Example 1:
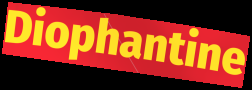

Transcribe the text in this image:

Diophantine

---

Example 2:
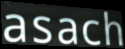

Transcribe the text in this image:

asach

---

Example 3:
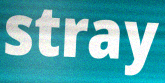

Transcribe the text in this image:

stray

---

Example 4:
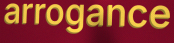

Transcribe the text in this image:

arrogance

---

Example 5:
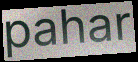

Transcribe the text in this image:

pahar